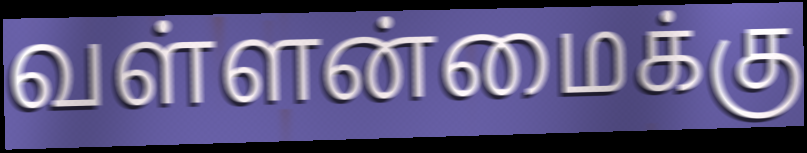
வள்ளன்மைக்கு